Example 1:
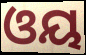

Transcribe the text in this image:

ଓୟ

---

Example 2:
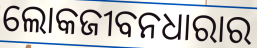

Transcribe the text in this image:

ଲୋକଜୀବନଧାରାର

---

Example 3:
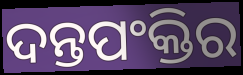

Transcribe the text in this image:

ଦନ୍ତପଂକ୍ତିର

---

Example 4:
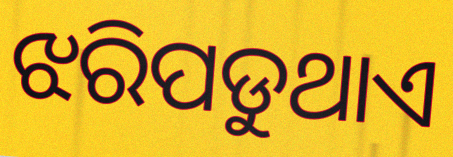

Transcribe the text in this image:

ଝରିପଡୁଥାଏ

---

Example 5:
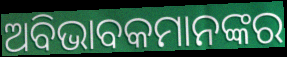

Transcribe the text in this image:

ଅବିଭାବକମାନଙ୍କର